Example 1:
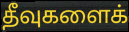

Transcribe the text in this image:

தீவுகளைக்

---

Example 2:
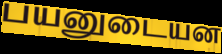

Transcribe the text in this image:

பயனுடையன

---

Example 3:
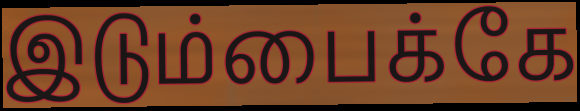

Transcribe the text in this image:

இடும்பைக்கே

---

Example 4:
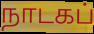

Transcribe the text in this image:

நாடகப்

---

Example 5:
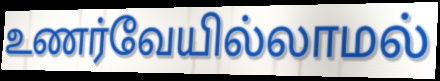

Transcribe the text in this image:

உணர்வேயில்லாமல்